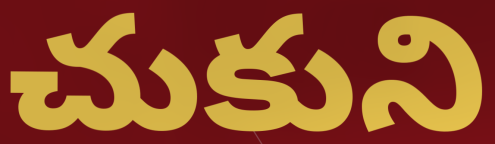
చుకుని